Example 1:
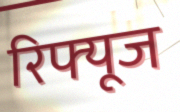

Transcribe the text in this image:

रिफ्यूज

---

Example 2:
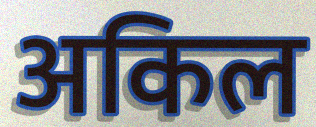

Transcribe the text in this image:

अकिल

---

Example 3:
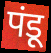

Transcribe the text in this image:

पंडू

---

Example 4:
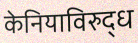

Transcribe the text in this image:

केनियाविरुद्ध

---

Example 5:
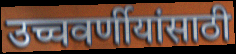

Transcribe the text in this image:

उच्चवर्णीयांसाठी